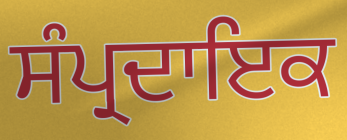
ਸੰਪ੍ਰਦਾਇਕ